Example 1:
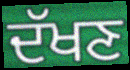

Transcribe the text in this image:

ਦੱਖਣ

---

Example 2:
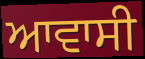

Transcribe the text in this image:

ਆਵਾਸੀ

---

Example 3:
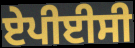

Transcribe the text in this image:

ਏਪੀਈਸੀ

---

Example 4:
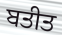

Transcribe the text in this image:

ਬਤੀਤ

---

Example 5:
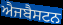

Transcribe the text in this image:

ਐਜਬੈਸਟਨ